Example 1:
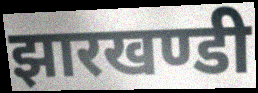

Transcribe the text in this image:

झारखण्डी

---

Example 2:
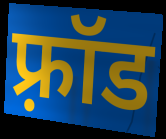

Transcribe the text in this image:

फ़्रॉड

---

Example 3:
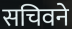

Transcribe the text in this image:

सचिवने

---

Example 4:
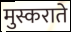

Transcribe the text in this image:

मुस्कराते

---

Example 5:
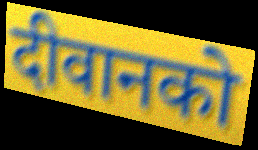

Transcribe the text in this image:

दीवानको